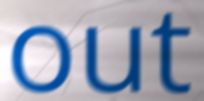
out